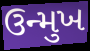
ઉન્મુખ